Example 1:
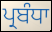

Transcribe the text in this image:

ਪ੍ਰਬੰਧਾ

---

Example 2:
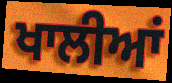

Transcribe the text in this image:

ਖਾਲੀਆਂ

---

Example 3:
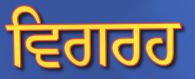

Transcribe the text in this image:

ਵਿਗਰਹ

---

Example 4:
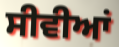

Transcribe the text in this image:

ਸੀਵੀਆਂ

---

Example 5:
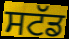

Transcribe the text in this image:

ਸਟੱਡ